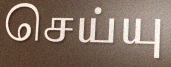
செய்யு